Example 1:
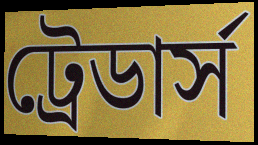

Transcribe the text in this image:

ট্রেডার্স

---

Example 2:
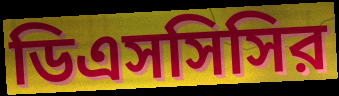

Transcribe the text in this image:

ডিএসসিসির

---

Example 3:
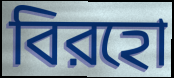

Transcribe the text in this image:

বিরহো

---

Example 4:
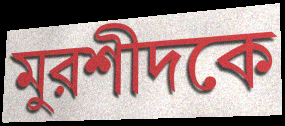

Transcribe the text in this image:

মুরশীদকে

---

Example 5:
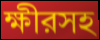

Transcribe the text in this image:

ক্ষীরসহ